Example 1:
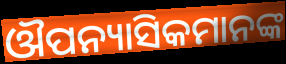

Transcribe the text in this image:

ଔପନ୍ୟାସିକମାନଙ୍କ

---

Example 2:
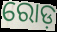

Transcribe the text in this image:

ରୋଡ଼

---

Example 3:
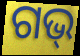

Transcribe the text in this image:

ଗଭ୍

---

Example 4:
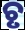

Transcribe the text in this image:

ଚୃ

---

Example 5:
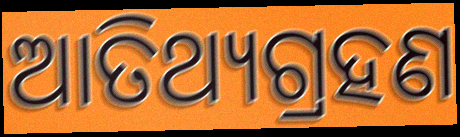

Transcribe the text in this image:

ଆତିଥ୍ୟଗ୍ରହଣ